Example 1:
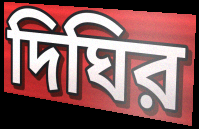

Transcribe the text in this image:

দিঘির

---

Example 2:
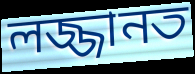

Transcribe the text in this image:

লজ্জানত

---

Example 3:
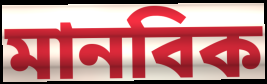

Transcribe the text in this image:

মানবিক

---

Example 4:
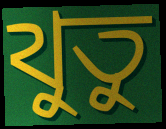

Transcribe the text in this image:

থুতু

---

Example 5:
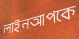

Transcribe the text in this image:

লাইনআপকে